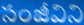
సంజీవిని